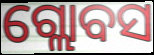
ଗ୍ଲୋବସ